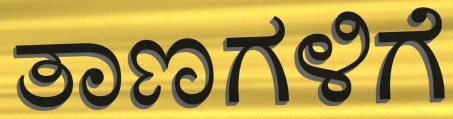
ತಾಣಗಳಿಗೆ